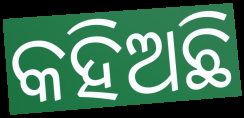
କହିଅଛି